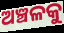
ଅଞ୍ଚଳକୁ